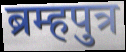
ब्रम्हपुत्र